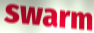
swarm